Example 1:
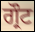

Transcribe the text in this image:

ਗ੍ਰੌਟ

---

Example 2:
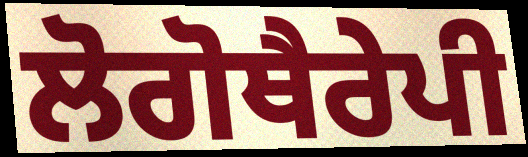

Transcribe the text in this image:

ਲੋਗੋਥੈਰੇਪੀ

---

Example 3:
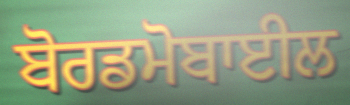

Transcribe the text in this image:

ਬੋਰਡਮੋਬਾਈਲ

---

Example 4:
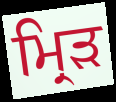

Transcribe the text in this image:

ਮ੍ਰਿੜ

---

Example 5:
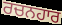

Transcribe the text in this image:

ਰਚਨਹਾਰ